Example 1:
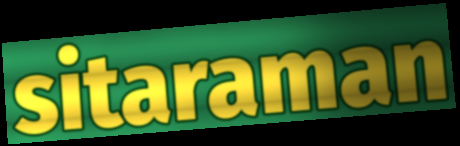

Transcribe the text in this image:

sitaraman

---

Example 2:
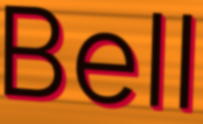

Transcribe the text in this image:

Bell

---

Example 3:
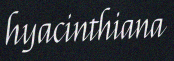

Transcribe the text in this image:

hyacinthiana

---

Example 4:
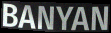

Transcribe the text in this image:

BANYAN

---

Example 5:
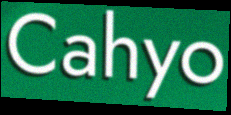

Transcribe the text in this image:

Cahyo